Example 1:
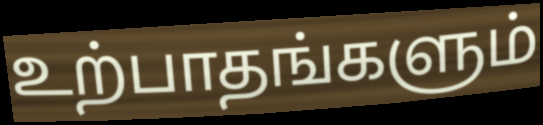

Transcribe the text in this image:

உற்பாதங்களும்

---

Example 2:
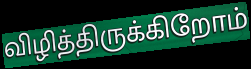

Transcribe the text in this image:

விழித்திருக்கிறோம்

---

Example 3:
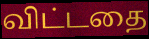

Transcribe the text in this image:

விட்டதை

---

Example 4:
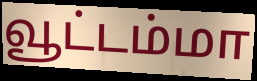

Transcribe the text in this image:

வூட்டம்மா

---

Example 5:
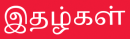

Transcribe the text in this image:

இதழ்கள்